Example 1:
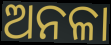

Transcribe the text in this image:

ଅନଳା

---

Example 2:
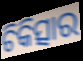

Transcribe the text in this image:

ଚିକିତ୍ସାର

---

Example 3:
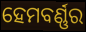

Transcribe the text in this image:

ହେମବର୍ଣ୍ଣର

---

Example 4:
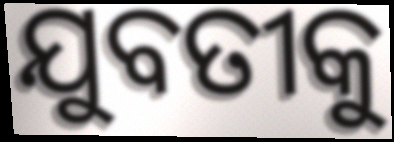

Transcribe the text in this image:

ଯୁବତୀକୁ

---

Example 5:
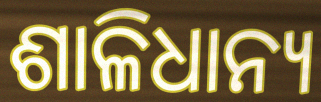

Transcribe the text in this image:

ଶାଳିଧାନ୍ୟ